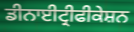
ਡੀਨਾਈਟ੍ਰੀਫੀਕੇਸ਼ਨ